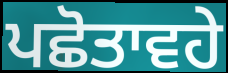
ਪਛੋਤਾਵਹੇ